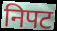
निपट